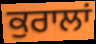
ਕੁਰਾਲਾਂ